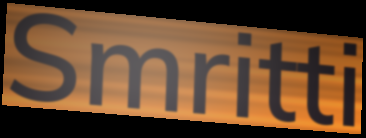
Smritti